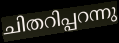
ചിതറിപ്പറന്നു